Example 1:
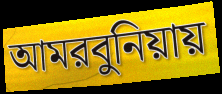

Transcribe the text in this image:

আমরবুনিয়ায়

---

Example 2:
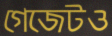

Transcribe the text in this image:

গেজেটও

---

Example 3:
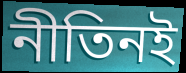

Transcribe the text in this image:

নীতিনই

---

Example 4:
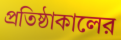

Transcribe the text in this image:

প্রতিষ্ঠাকালের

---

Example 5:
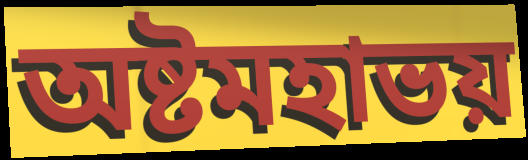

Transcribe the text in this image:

অষ্টমহাভয়